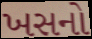
ખસનો